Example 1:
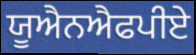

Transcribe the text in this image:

ਯੂਐਨਐਫਪੀਏ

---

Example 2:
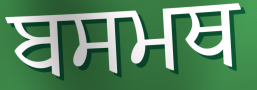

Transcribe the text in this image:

ਬਸਮਥ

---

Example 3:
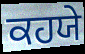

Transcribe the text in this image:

ਕਹਯੇ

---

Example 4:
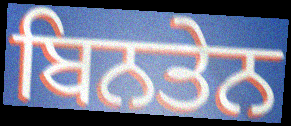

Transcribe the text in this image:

ਬਿਨਤੇਨ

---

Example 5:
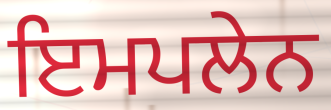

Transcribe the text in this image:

ਇਮਪਲੇਨ